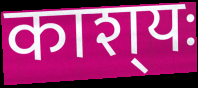
काश्यः